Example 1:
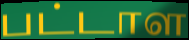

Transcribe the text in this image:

பட்டாள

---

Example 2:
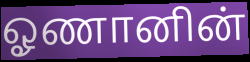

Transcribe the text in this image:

ஓணானின்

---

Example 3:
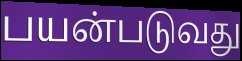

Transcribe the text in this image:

பயன்படுவது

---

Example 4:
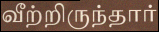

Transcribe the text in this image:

வீற்றிருந்தார்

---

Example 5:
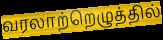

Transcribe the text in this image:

வரலாற்றெழுத்தில்